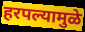
हरपल्यामुळे